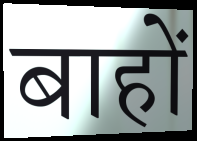
बाहों